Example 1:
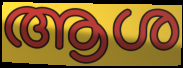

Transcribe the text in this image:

ആശ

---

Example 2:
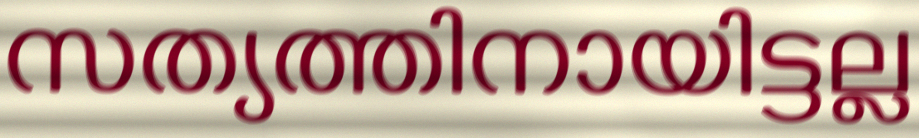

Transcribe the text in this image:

സത്യത്തിനായിട്ടല്ല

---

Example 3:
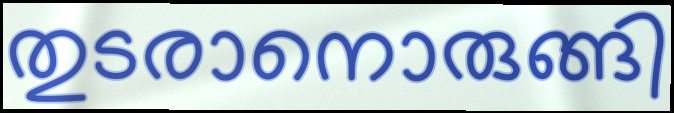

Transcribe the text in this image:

തുടരാനൊരുങ്ങി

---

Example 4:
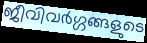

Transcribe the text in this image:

ജീവിവർഗ്ഗങ്ങളുടെ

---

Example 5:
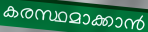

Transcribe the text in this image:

കരസ്ഥമാക്കാൻ